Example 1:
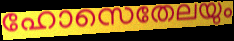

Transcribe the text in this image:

ഹോസെതേലയും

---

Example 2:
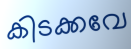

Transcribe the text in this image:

കിടക്കവേ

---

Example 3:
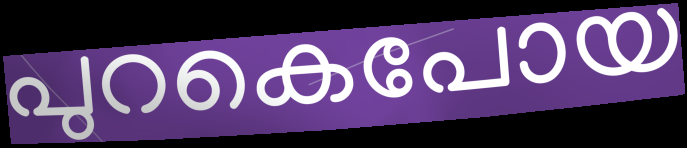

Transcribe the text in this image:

പുറകെപോയ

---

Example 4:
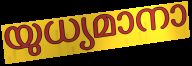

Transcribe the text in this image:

യുധ്യമാനാ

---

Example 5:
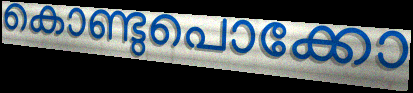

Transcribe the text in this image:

കൊണ്ടുപൊക്കോ